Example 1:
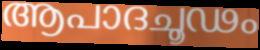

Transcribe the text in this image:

ആപാദചൂഢം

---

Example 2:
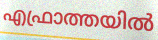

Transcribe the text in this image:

എഫ്രാത്തയിൽ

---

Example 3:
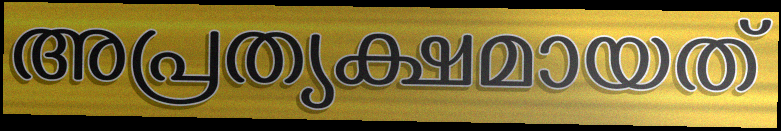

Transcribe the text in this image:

അപ്രത്യക്ഷമായത്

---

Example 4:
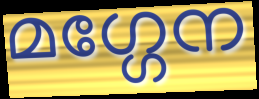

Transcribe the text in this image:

മഗ്ഗേന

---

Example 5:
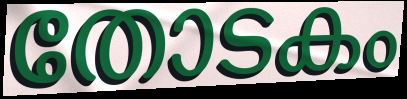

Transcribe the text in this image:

തോടകം